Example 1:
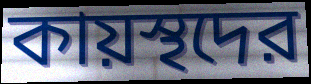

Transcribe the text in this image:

কায়স্থদের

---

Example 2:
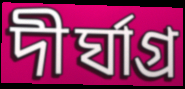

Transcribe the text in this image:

দীর্ঘাগ্র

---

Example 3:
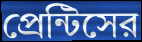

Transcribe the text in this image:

প্রেন্টিসের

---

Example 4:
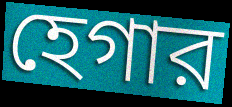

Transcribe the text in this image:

হেগার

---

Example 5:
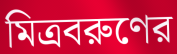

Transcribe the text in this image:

মিত্রবরুণের